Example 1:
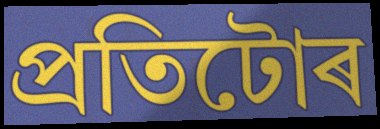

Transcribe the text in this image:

প্ৰতিটোৰ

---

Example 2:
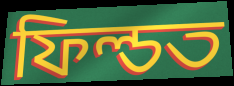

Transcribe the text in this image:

ফিল্ডত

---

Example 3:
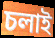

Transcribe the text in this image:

চলাই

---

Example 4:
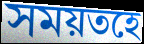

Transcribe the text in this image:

সময়তহে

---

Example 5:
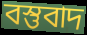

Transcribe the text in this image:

বস্তুবাদ